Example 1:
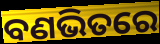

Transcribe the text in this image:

ବଣଭିତରେ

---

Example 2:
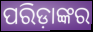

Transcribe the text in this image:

ପରିଡ଼ାଙ୍କର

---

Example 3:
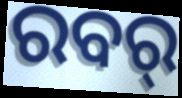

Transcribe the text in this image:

ରବର୍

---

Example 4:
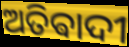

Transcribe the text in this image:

ଅତିଵାଦୀ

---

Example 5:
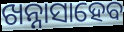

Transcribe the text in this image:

ଖନ୍ନାସାହେବ